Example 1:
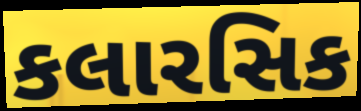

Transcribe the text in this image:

કલારસિક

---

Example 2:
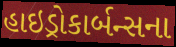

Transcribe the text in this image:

હાઇડ્રોકાર્બન્સના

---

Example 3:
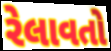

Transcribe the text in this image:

રેલાવતો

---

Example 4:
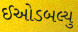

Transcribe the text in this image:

ઈઓડબલ્યુ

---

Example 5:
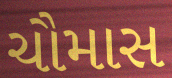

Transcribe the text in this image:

ચૌમાસ